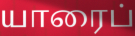
யாரைப்